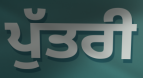
ਪੁੱਤਰੀ